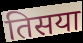
तिसया